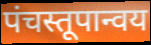
पंचस्तूपान्वय